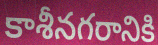
కాశీనగరానికి